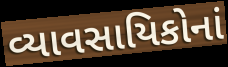
વ્યાવસાયિકોનાં